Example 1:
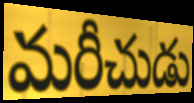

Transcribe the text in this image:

మరీచుడు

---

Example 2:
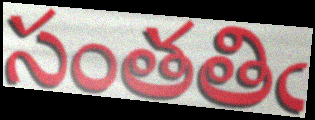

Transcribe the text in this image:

సంతతిఁ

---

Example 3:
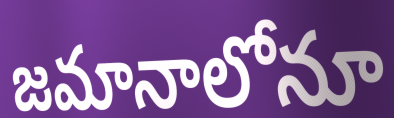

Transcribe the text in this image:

జమానాలోనూ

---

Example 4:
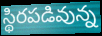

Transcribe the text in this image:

స్థిరపడివున్న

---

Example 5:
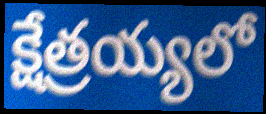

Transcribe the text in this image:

క్షేత్రయ్యలో